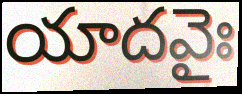
యాదవైః